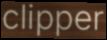
clipper